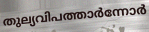
തുല്യവിപത്താർന്നോർ